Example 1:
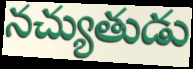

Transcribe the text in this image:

నచ్యుతుడు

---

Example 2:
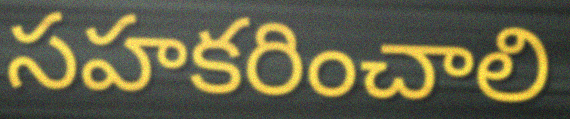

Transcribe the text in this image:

సహకరించాలి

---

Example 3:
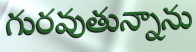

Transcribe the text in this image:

గురవుతున్నాను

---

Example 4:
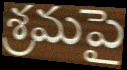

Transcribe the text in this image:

శ్రమపై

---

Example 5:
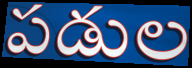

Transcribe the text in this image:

పడుల